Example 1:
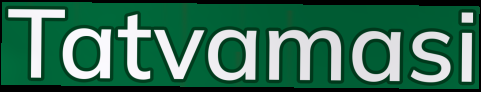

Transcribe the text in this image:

Tatvamasi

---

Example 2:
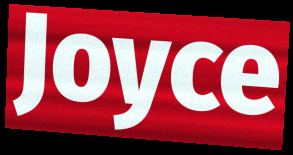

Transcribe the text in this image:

Joyce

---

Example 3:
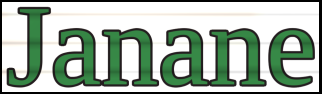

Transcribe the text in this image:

Janane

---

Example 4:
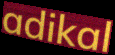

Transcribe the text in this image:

adikal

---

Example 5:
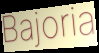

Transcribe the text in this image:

Bajoria